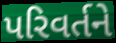
પરિવર્તને